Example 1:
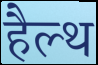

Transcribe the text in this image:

हैल्थ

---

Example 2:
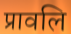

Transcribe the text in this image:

प्रावलि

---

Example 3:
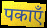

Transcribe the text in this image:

पकाएँ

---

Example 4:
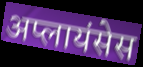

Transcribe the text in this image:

अप्लायंसेस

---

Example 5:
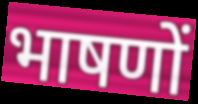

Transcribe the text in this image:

भाषणों